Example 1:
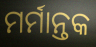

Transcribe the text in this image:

ମର୍ମାନ୍ତକ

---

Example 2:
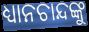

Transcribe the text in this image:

ଧ୍ୟାନଚାନ୍ଦଙ୍କୁ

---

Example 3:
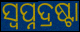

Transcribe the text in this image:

ସ୍ୱପ୍ନଦ୍ରଷ୍ଟା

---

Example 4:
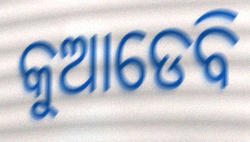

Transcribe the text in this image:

କୁଆଡେବି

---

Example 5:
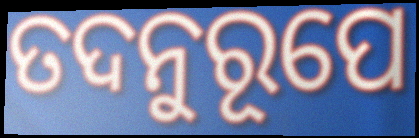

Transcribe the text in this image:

ତଦନୁରୂପେ